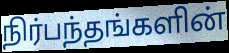
நிர்பந்தங்களின்